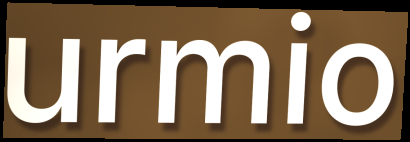
urmio